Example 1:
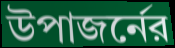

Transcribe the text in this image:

উপাজর্নের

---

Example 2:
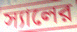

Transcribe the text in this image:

স্যালের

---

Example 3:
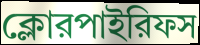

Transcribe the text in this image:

ক্লোরপাইরিফস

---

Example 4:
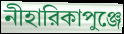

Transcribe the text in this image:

নীহারিকাপুঞ্জে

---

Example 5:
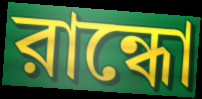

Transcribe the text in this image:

রান্ধো